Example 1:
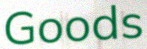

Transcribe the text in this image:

Goods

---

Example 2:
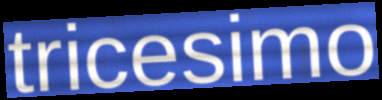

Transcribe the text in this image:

tricesimo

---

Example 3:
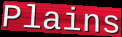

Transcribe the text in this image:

Plains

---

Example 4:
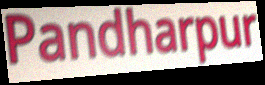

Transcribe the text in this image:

Pandharpur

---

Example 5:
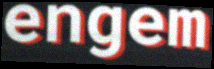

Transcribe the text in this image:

engem